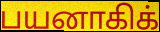
பயனாகிக்